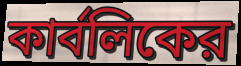
কার্বলিকের